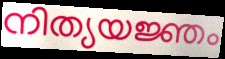
നിത്യയജ്ഞം